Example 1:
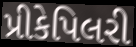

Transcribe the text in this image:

પ્રીકેપિલરી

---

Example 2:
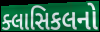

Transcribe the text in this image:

ક્લાસિકલનો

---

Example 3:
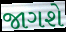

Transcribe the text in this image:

જાગશે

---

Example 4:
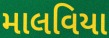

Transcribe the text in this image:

માલવિયા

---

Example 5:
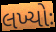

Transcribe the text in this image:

લખ્યોઃ